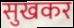
सुखकर